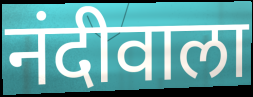
नंदीवाला